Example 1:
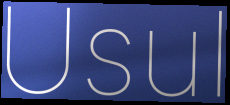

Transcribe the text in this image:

Usul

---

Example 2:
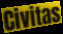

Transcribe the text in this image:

Civitas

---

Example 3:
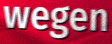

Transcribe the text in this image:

wegen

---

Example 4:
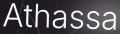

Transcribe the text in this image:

Athassa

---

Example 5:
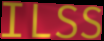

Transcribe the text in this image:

ILSS